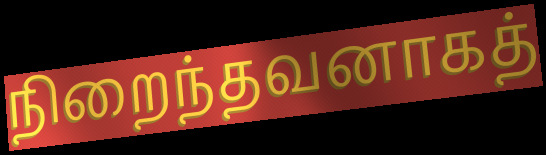
நிறைந்தவனாகத்